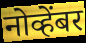
नोव्हेंबर